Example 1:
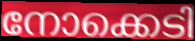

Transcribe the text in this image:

നോക്കെടി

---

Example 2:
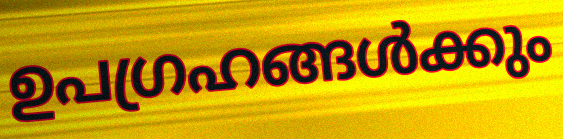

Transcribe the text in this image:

ഉപഗ്രഹങ്ങൾക്കും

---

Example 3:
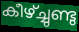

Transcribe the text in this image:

കീഴ്ച്ചുണ്ടു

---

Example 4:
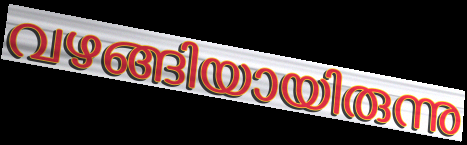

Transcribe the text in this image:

വഴങ്ങിയായിരുന്നു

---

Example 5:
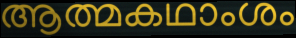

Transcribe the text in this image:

ആത്മകഥാംശം